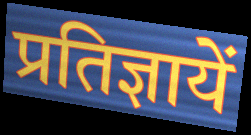
प्रतिज्ञायें